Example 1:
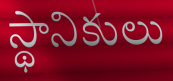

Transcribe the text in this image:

స్థానికులు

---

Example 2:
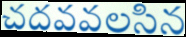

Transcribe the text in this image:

చదవవలసిన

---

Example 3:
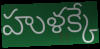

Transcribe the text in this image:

హుళక్కే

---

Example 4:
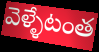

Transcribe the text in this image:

వెళ్ళేటంత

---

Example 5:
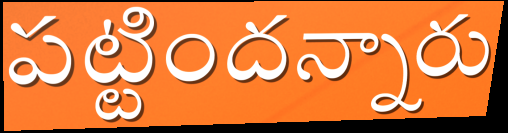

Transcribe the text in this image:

పట్టిందన్నారు